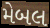
મેબલ